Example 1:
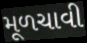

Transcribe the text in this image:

મૂળચાવી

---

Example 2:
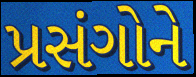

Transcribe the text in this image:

પ્રસંગોને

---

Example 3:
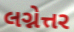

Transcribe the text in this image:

લગ્નેત્તર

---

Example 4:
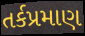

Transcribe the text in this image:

તર્કપ્રમાણ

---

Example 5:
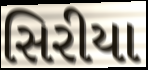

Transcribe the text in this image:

સિરીયા